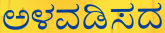
ಅಳವಡಿಸದ